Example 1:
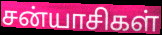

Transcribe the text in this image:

சன்யாசிகள்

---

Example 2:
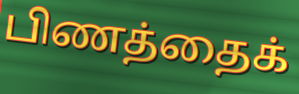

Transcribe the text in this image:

பிணத்தைக்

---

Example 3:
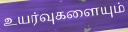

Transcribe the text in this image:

உயர்வுகளையும்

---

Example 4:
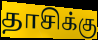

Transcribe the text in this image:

தாசிக்கு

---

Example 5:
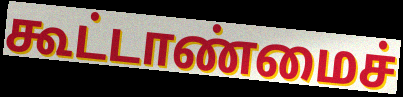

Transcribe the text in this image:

கூட்டாண்மைச்